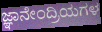
ಜ್ಞಾನೇಂದ್ರಿಯಗಳ